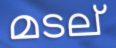
മടല്